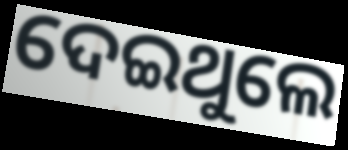
ଦେଇଥୁଲେ